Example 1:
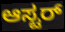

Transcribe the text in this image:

ಆಸ್ಟರ್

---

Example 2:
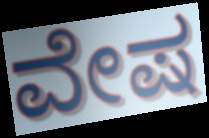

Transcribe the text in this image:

ವೇಷ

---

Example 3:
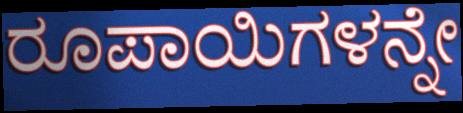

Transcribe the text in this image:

ರೂಪಾಯಿಗಳನ್ನೇ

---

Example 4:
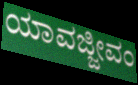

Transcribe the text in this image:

ಯಾವಜ್ಜೀವಂ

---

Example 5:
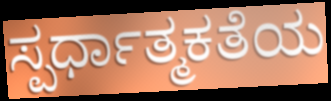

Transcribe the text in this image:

ಸ್ಪರ್ಧಾತ್ಮಕತೆಯ